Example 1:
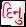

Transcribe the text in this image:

દિનુ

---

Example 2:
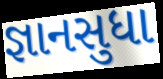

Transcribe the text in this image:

જ્ઞાનસુધા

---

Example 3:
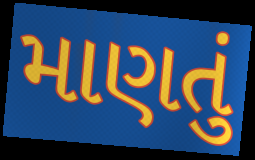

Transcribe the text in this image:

માણતું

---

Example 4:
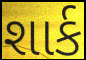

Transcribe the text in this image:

શાર્ક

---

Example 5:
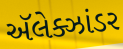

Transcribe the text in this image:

ઍલેક્ઝાંડર